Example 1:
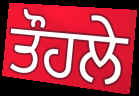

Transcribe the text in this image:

ਤੌਹਲੇ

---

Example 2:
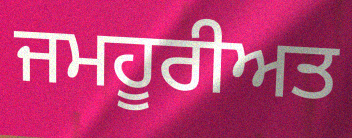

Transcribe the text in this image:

ਜਮਹੂਰੀਅਤ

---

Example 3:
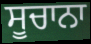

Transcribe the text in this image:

ਸੂਚਾਨਾ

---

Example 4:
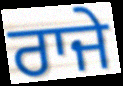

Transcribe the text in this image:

ਰਾਜੇ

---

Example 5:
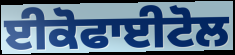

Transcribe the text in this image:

ਈਕੋਫਾਈਟੋਲ